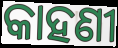
କାହଣୀ